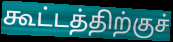
கூட்டத்திற்குச்